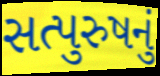
સત્પુરુષનું